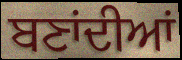
ਬਣਾਂਦੀਆਂ